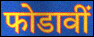
फोडावीं